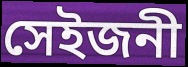
সেইজনী